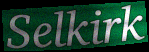
Selkirk